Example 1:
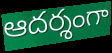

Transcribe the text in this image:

ఆదర్శంగా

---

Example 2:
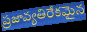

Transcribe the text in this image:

ప్రజావ్యతిరేకమైన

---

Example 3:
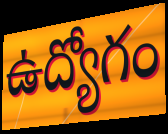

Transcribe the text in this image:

ఉద్యోగం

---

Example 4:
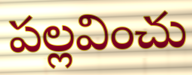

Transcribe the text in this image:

పల్లవించు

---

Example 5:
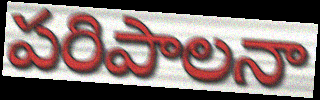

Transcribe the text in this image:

పరిపాలనా